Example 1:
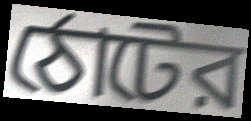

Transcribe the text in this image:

ঠোটের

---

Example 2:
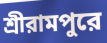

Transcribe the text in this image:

শ্রীরামপুরে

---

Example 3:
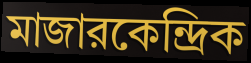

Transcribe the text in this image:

মাজারকেন্দ্রিক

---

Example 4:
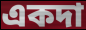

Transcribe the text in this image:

একদা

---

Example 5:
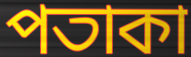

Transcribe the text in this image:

পতাকা